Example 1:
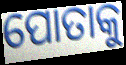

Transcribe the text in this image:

ପୋତାକୁ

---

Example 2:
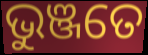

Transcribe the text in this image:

ଭୁଞ୍ଜତେ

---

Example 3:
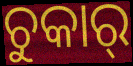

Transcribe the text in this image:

ଚୁକାର୍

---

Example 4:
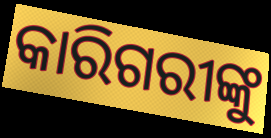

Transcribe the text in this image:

କାରିଗରୀଙ୍କୁ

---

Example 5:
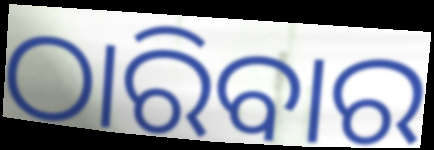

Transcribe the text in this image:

ଠାରିବାର